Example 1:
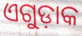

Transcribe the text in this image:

ଏଗୁଡ଼ାକ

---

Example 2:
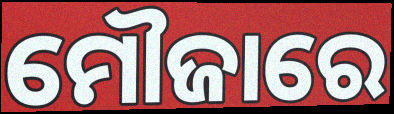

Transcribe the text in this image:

ମୌଜାରେ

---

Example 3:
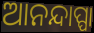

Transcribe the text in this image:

ଆନନ୍ଦାପ୍ପା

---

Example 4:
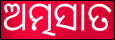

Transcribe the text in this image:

ଅତ୍ମସାତ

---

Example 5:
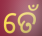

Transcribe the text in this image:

ତେଁ